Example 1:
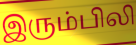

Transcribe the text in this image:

இரும்பிலி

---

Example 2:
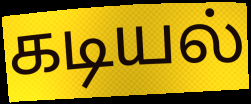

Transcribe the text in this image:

கடியல்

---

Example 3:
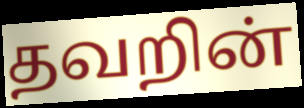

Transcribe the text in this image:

தவறின்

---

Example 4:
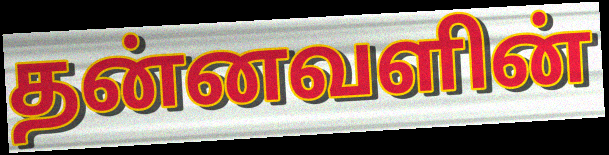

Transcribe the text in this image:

தன்னவளின்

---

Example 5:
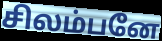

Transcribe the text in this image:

சிலம்பனே